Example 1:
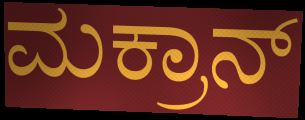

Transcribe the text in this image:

ಮಕ್ರಾನ್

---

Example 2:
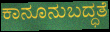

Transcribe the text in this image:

ಕಾನೂನುಬದ್ಧತೆ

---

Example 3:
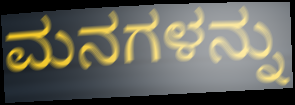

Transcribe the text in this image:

ಮನಗಳನ್ನು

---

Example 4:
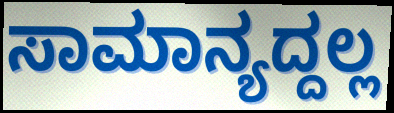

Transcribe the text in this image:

ಸಾಮಾನ್ಯದ್ದಲ್ಲ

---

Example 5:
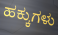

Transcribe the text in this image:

ಹಕ್ಕುಗಳು